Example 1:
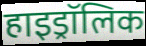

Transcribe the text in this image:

हाइड्रॉलिक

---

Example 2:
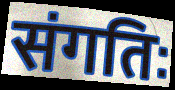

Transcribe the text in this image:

संगतिः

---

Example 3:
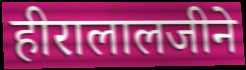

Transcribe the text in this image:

हीरालालजीने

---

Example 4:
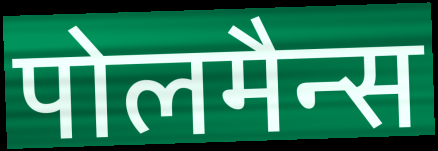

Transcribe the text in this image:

पोलमैन्स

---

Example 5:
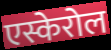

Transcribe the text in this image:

एस्केरोल